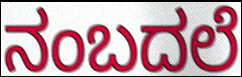
ನಂಬದಲೆ